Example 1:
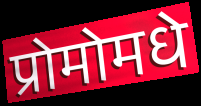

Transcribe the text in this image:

प्रोमोमधे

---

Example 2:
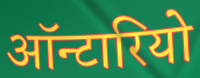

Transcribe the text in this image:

ऑन्टारियो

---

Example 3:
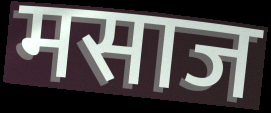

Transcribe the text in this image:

मसाज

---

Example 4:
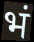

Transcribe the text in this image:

भं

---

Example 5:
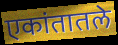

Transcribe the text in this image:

एकांतातले